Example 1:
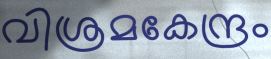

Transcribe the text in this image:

വിശ്രമകേന്ദ്രം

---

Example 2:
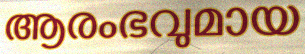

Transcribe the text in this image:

ആരംഭവുമായ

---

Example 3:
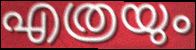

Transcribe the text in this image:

എത്രയും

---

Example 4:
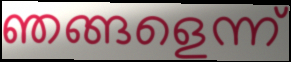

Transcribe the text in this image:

ഞങ്ങളെന്ന്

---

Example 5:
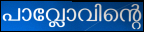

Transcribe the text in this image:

പാവ്ലോവിന്റെ